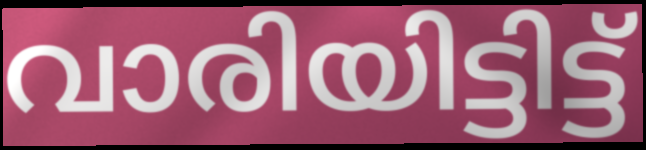
വാരിയിട്ടിട്ട്